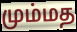
மும்மத